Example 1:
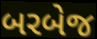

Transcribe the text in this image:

બરબેજ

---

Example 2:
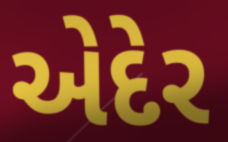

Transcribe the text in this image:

એદેર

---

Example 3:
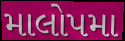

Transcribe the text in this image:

માલોપમા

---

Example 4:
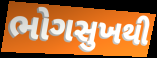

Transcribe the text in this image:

ભોગસુખથી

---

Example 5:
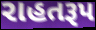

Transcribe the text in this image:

રાહતરૂપ